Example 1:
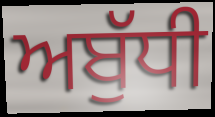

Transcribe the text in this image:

ਅਬੁੱਧੀ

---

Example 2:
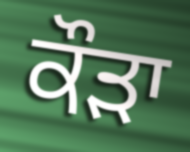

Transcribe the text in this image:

ਕੌਡ਼ਾ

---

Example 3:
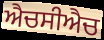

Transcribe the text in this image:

ਐਚਸੀਐਚ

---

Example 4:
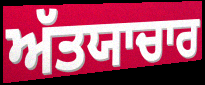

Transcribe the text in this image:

ਅੱਤਯਾਚਾਰ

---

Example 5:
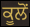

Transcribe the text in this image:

ਕੂਲੋਂ